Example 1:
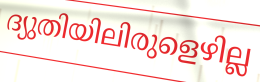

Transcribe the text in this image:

ദ്യുതിയിലിരുളെഴില്ല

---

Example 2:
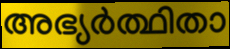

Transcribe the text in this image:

അഭ്യർത്ഥിതാ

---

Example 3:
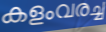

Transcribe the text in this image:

കളംവരച്ച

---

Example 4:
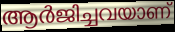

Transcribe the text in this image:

ആർജിച്ചവയാണ്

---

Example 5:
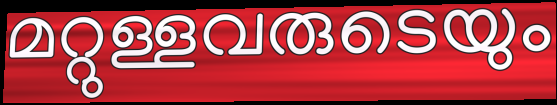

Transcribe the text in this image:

മറ്റുള്ളവരുടെയും